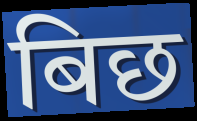
बिछ